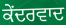
ਕੇਂਦਰਵਾਦ